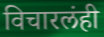
विचारलंही